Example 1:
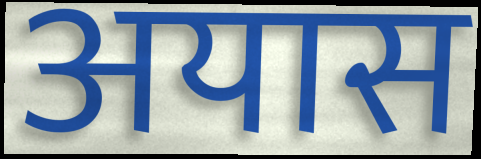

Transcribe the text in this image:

अयास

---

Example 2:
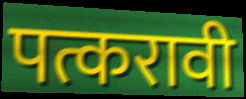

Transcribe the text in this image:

पत्करावी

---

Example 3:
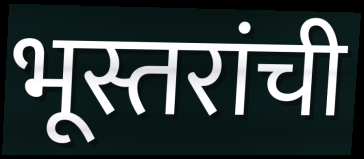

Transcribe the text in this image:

भूस्तरांची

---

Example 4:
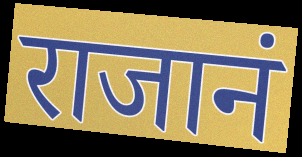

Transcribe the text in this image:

राजानं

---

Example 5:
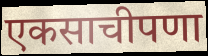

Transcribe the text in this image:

एकसाचीपणा